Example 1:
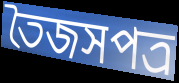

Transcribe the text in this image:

তৈজসপত্র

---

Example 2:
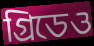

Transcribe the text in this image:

গ্রিডেও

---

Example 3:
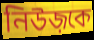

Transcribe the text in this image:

নিউজ়কে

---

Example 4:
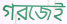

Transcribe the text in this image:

গরজেই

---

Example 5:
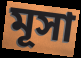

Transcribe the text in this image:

মূসা